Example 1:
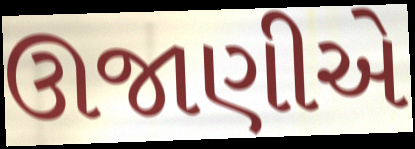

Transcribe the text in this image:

ઊજાણીએ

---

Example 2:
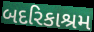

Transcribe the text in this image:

બદરિકાશ્રમ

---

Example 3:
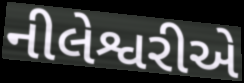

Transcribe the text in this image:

નીલેશ્વરીએ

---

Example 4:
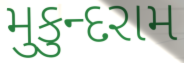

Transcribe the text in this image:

મુકુન્દરામ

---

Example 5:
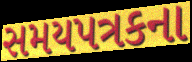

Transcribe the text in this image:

સમયપત્રકના